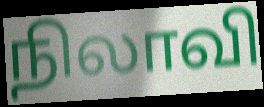
நிலாவி